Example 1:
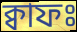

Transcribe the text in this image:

ক্বাফঃ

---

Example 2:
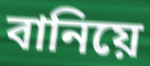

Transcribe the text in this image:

বানিয়ে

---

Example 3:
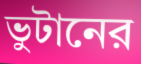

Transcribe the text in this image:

ভুটানের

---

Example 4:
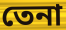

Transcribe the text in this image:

তেনা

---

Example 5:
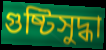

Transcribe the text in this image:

গুষ্টিসুদ্ধা